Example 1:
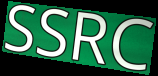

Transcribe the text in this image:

SSRC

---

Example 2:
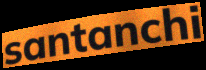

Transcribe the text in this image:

santanchi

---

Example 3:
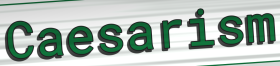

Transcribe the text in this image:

Caesarism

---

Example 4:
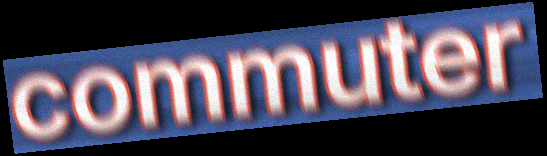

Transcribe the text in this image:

commuter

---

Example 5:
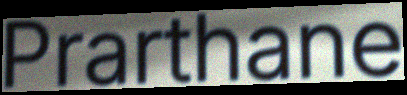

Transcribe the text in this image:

Prarthane